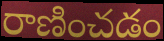
రాణించడం